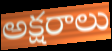
అక్షరాలు